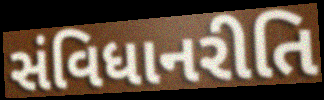
સંવિધાનરીતિ